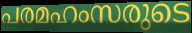
പരമഹംസരുടെ